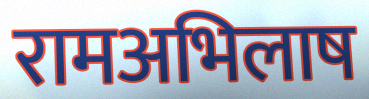
रामअभिलाष